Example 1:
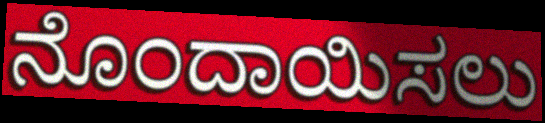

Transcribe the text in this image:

ನೊಂದಾಯಿಸಲು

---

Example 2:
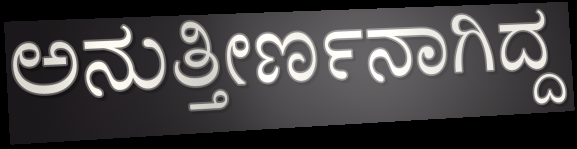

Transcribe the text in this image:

ಅನುತ್ತೀರ್ಣನಾಗಿದ್ದ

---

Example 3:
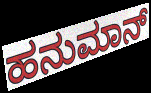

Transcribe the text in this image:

ಹನುಮಾನ್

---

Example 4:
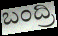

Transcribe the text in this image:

ಬಂದ್ರಿ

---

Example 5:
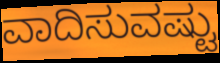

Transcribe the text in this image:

ವಾದಿಸುವಷ್ಟು